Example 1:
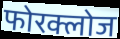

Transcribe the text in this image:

फोरक्लोज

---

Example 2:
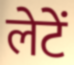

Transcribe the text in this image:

लेटें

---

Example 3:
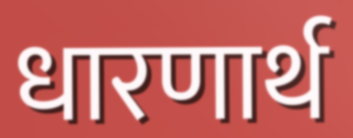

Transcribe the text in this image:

धारणार्थ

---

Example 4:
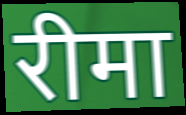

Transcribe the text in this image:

रीमा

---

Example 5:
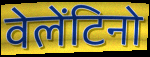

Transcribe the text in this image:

वेलेंटिनो